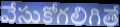
వేసుకోగలిగితే